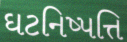
ઘટનિષ્પત્તિ